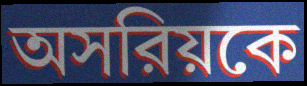
অসরিয়কে